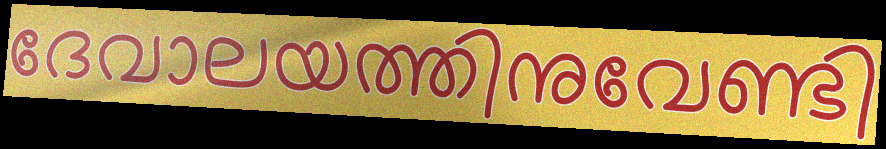
ദേവാലയത്തിനുവേണ്ടി